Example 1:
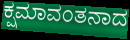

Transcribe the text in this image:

ಕ್ಷಮಾವಂತನಾದ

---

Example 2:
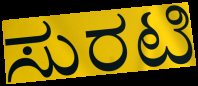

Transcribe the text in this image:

ಸುರಟಿ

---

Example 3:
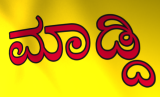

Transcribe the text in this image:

ಮಾಡ್ದಿ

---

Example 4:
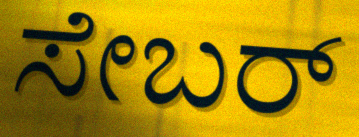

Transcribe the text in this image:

ಸೇಬರ್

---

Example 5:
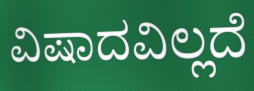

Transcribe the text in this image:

ವಿಷಾದವಿಲ್ಲದೆ